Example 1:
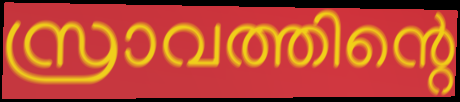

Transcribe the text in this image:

സ്രാവത്തിന്റെ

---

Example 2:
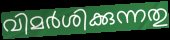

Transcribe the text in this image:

വിമർശിക്കുന്നതു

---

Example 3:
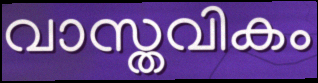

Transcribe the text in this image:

വാസ്തവികം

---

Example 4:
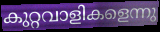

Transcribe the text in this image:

കുറ്റവാളികളെന്നു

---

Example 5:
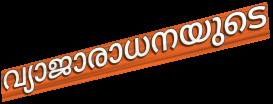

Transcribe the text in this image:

വ്യാജാരാധനയുടെ